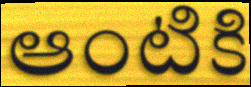
ఆంటికి